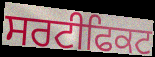
ਸਰਟੀਫਿਕਟ